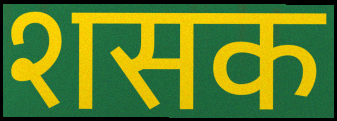
शसक